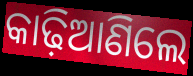
କାଢ଼ିଆଣିଲେ